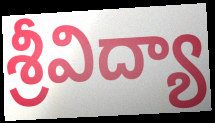
శ్రీవిద్యా